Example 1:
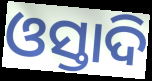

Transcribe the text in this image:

ଓସ୍ତାଦି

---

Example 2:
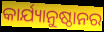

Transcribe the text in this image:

କାର୍ଯ୍ୟାନୁଷ୍ଠାନର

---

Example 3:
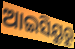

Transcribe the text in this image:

ଆଇସିୟୁରୁ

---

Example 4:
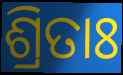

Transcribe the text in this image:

ଶ୍ରିତାଃ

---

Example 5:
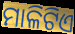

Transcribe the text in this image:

ମାଳିଟିଏ